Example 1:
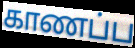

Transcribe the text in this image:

காணப்ப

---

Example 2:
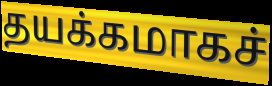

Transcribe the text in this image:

தயக்கமாகச்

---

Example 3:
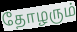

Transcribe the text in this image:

தோழரும்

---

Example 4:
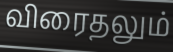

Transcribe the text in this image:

விரைதலும்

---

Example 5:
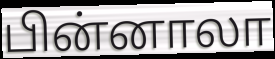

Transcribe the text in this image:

பின்னாலா